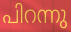
പിറന്നു